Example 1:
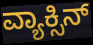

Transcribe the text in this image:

ವ್ಯಾಕ್ಸಿನ್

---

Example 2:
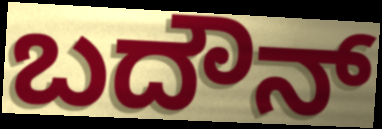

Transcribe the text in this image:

ಬದೌನ್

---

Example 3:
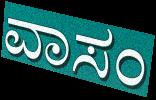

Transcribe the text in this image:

ವಾಸಂ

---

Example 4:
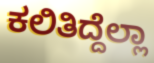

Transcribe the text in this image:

ಕಲಿತಿದ್ದೆಲ್ಲಾ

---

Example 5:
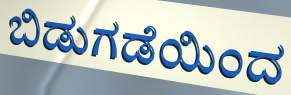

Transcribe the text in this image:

ಬಿಡುಗಡೆಯಿಂದ